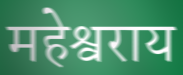
महेश्वराय